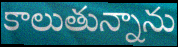
కాలుతున్నాను